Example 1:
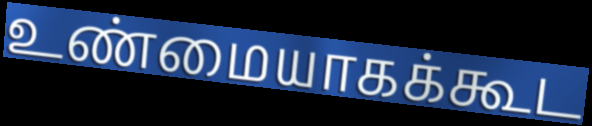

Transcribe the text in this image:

உண்மையாகக்கூட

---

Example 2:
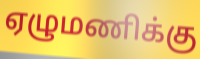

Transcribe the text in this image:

ஏழுமணிக்கு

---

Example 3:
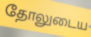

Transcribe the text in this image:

தோலுடைய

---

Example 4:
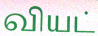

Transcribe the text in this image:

வியட்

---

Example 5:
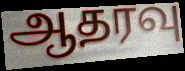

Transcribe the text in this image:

ஆதரவு